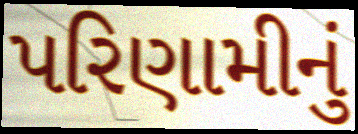
પરિણામીનું